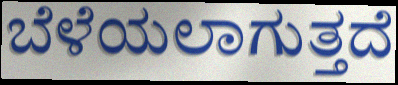
ಬೆಳೆಯಲಾಗುತ್ತದೆ